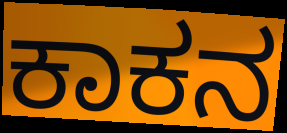
ಕಾಕನ